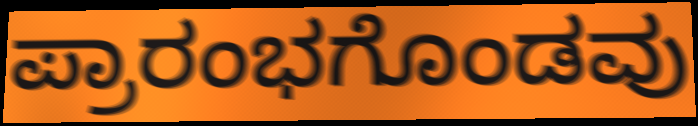
ಪ್ರಾರಂಭಗೊಂಡವು